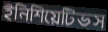
ইনিশিয়েটিভস